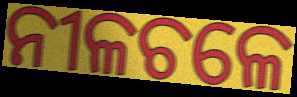
ନୀଳଚଳେ